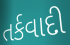
તર્કવાદી